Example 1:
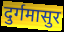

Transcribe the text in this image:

दुर्गमासुर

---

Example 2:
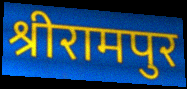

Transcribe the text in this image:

श्रीरामपुर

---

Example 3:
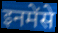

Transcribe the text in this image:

इनमेंसे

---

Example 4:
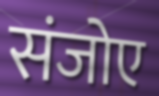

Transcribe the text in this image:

संजोए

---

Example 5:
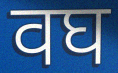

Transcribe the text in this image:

वघ